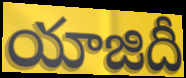
యాజిదీ